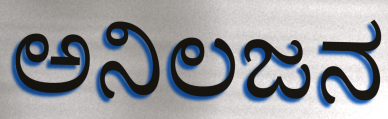
ಅನಿಲಜನ